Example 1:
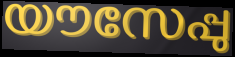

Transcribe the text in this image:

യൗസേപ്പു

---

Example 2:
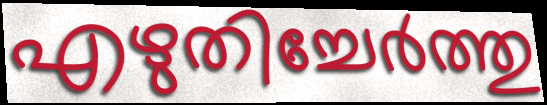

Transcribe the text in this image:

എഴുതിച്ചേർത്തു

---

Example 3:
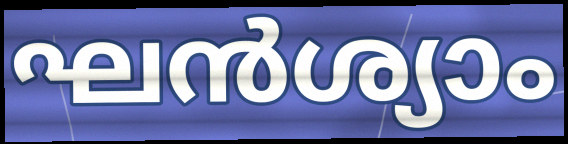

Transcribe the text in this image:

ഘൻശ്യാം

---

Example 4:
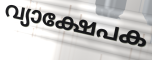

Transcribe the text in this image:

വ്യാക്ഷേപക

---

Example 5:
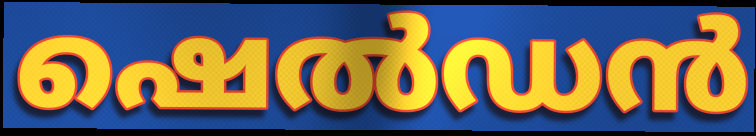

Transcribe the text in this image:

ഷെൽഡൻ